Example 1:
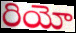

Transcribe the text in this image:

రియో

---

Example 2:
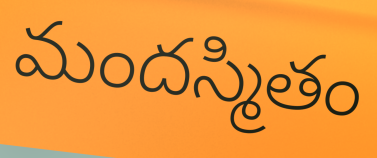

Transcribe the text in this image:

మందస్మితం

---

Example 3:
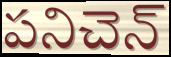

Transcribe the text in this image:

పనిచెన్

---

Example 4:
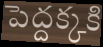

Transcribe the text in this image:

పెద్దక్కకి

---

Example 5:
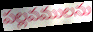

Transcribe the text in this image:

పల్లవములను